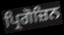
ਪ੍ਰਿਗੋਜ਼ਿਨ